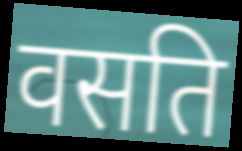
वसति